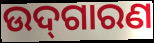
ଉଦ୍‌ଗାରଣ